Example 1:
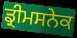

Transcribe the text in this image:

ਡ੍ਰੀਮਸਨੇਕ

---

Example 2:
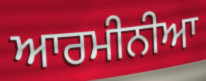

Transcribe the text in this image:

ਆਰਮੀਨੀਆ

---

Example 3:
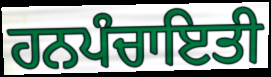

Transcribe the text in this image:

ਹਨਪੰਚਾਇਤੀ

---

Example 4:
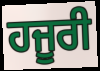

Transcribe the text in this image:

ਹਜੂਰੀ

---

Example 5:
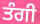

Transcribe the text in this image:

ਤੰਗੀ